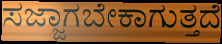
ಸಜ್ಜಾಗಬೇಕಾಗುತ್ತದೆ